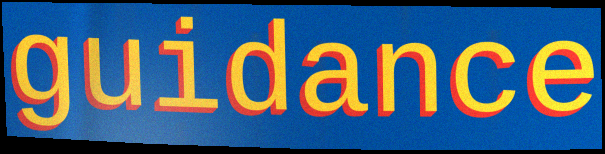
guidance